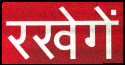
रखेगें